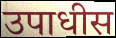
उपाधीस